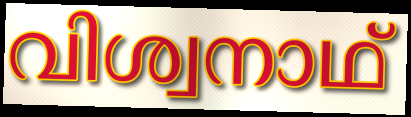
വിശ്വനാഥ്